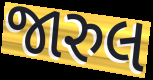
જારુલ